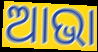
ଆଭା